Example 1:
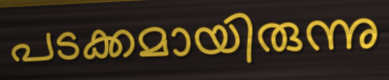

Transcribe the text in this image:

പടക്കമായിരുന്നു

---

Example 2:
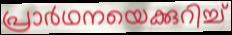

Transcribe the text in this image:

പ്രാർഥനയെക്കുറിച്ച്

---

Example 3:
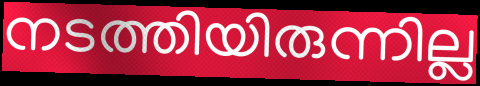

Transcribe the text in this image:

നടത്തിയിരുന്നില്ല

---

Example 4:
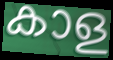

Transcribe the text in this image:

കാള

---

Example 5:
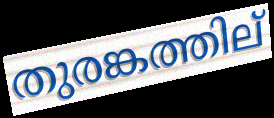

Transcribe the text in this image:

തുരങ്കത്തില്